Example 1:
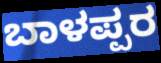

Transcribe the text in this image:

ಬಾಳಪ್ಪರ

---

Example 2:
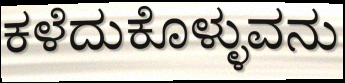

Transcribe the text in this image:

ಕಳೆದುಕೊಳ್ಳುವನು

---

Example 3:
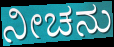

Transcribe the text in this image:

ನೀಚನು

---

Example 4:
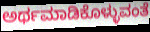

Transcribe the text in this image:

ಅರ್ಥಮಾಡಿಕೊಳ್ಳುವಂತೆ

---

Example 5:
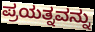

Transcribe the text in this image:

ಪ್ರಯತ್ನವನ್ನು